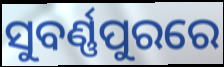
ସୁବର୍ଣ୍ଣପୁରରେ